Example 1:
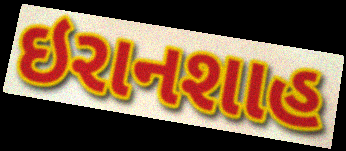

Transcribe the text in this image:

ઇરાનશાહ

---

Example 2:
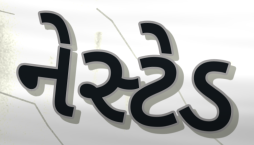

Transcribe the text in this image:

નેસ્ટેડ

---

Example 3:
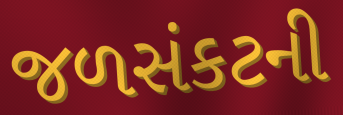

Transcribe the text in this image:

જળસંકટની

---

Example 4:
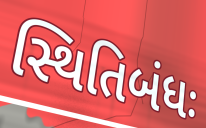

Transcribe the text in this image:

સ્થિતિબંધઃ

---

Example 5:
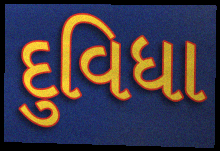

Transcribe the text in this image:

દુવિધા